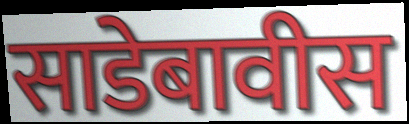
साडेबावीस